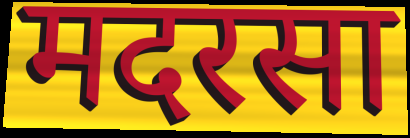
मदरसा